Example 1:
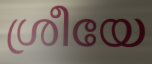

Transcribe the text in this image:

ശ്രീയേ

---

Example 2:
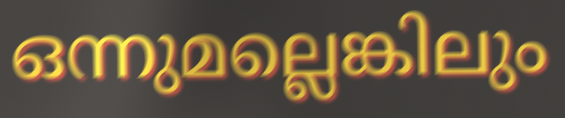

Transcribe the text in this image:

ഒന്നുമല്ലെങ്കിലും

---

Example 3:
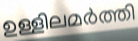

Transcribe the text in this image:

ഉള്ളിലമർത്തി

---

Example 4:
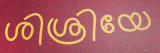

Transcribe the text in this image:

ശിശ്രിയേ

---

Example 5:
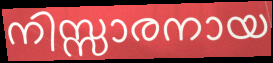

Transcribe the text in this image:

നിസ്സാരനായ